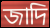
জাদি